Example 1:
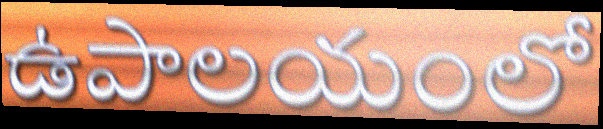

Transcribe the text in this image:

ఉపాలయంలో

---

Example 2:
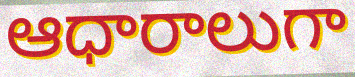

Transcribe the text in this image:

ఆధారాలుగా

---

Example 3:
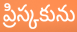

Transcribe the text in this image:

ప్రిస్కకును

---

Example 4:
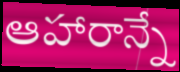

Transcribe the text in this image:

ఆహారాన్నే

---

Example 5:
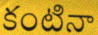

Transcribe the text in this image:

కంటినా